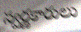
స్వర్ణకారులు